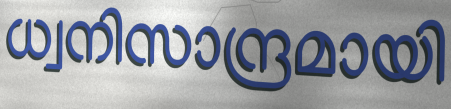
ധ്വനിസാന്ദ്രമായി